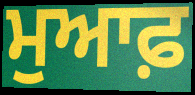
ਮੁਆਫ਼